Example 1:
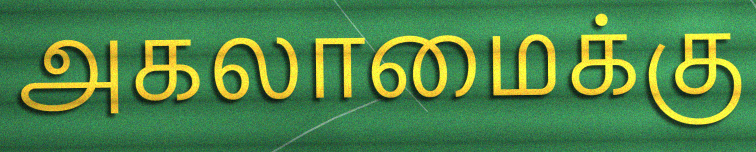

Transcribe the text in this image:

அகலாமைக்கு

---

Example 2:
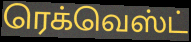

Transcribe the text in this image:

ரெக்வெஸ்ட்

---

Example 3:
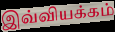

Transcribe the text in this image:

இவ்வியக்கம்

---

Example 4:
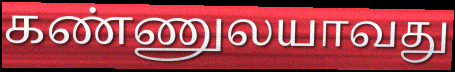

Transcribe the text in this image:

கண்ணுலயாவது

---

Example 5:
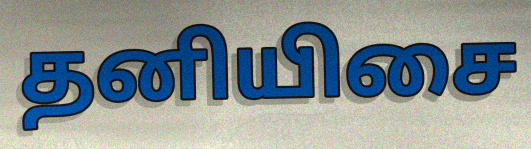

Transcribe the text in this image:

தனியிசை